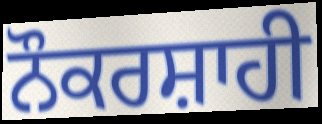
ਨੌਕਰਸ਼ਾਹੀ